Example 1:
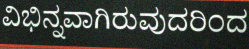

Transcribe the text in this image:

ವಿಭಿನ್ನವಾಗಿರುವುದರಿಂದ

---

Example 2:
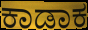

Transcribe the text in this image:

ಕಾಡಾಕ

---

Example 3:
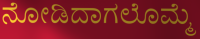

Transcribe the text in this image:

ನೋಡಿದಾಗಲೊಮ್ಮೆ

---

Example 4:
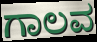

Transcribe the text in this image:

ಗಾಲವ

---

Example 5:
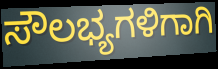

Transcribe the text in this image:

ಸೌಲಭ್ಯಗಳಿಗಾಗಿ